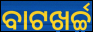
ବାଟଖର୍ଚ୍ଚ